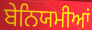
ਬੇਨਿਯਮੀਆਂ